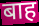
बाह